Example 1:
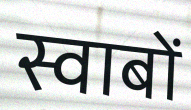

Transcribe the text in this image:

स्वाबों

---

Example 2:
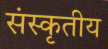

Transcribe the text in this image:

संस्कृतीय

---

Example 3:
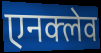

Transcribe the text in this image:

एनक्‍लेव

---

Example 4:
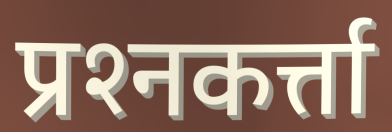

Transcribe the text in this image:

प्रश्नकर्त्ता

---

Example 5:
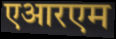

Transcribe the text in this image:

एआरएम